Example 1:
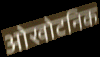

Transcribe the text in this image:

ओखोटनिक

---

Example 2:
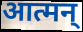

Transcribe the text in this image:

आत्मन्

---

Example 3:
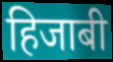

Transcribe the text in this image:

हिजाबी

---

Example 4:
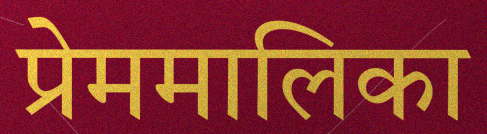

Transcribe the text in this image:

प्रेममालिका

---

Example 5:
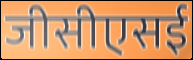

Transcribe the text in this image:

जीसीएसई